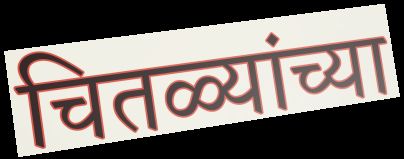
चितळ्यांच्या